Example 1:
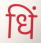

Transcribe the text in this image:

धिं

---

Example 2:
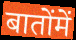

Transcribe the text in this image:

बातोंमें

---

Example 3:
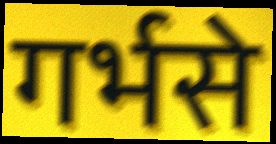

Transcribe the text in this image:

गर्भसे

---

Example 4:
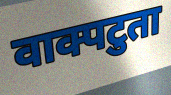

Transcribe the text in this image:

वाक्पटुता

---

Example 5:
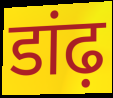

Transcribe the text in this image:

डांढ़